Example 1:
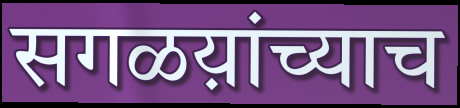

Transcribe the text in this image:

सगळय़ांच्याच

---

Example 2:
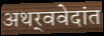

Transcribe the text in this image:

अथर्ववेदांत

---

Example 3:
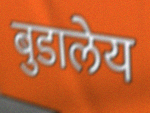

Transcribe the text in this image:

बुडालेय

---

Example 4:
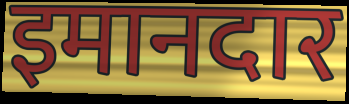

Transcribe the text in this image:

इमानदार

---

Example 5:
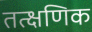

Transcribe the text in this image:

तत्क्षणिक